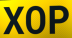
XOP